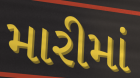
મારીમાં